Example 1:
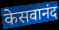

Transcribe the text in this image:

केसवानंद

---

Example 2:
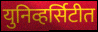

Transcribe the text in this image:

युनिव्हर्सिटीत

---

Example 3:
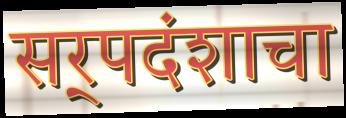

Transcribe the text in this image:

सर्पदंशाचा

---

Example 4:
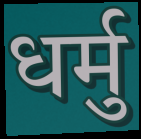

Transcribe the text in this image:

धर्मु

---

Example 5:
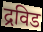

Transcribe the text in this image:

द्रविड